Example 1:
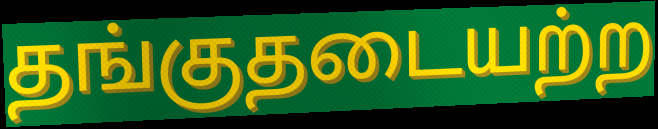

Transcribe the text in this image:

தங்குதடையற்ற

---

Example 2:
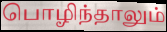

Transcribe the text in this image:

பொழிந்தாலும்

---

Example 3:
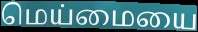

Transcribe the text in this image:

மெய்மையை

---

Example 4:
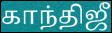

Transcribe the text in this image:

காந்திஜீ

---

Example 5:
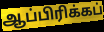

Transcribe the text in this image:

ஆப்பிரிக்கப்